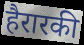
हैरारकी